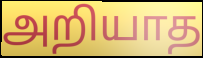
அறியாத